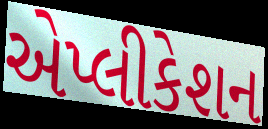
એપ્લીકેશન